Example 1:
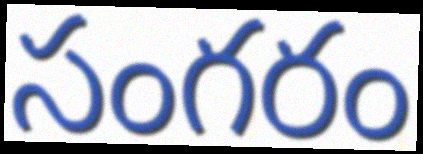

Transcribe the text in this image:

సంగరం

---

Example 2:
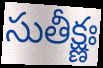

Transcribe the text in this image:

సుతీక్ష్ణః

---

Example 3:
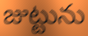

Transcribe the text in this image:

జుట్టును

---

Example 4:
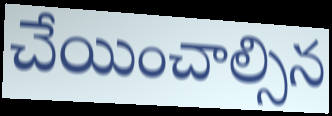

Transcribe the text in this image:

చేయించాల్సిన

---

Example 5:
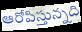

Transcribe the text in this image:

ఆరోపిస్తున్నది